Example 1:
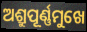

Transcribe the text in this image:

ଅଶ୍ରୁପୂର୍ଣ୍ଣମୁଖେ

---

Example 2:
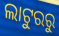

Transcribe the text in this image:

ଲାଟୁରରୁ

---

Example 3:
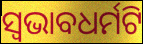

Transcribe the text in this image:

ସ୍ଵଭାବଧର୍ମଟି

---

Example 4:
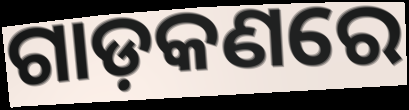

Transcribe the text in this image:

ଗାଡ଼କଣରେ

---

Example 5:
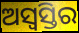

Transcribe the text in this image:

ଅସ୍ୱସ୍ତିର